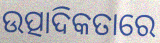
ଉତ୍ପାଦିକତାରେ